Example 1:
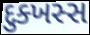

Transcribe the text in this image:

દુક્ખસ્સ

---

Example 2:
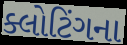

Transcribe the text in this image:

ક્લોટિંગના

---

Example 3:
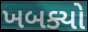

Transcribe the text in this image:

ખબક્યો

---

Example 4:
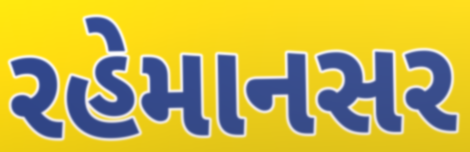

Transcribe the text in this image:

રહેમાનસર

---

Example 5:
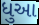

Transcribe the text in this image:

ધુઆ